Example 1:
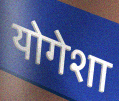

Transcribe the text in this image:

योगेशा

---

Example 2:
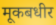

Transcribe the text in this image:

मूकबधीर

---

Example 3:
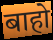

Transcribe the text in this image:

बाहो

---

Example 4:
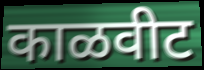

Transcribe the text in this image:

काळवीट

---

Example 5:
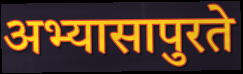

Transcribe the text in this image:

अभ्यासापुरते